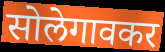
सोलेगावकर